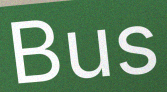
Bus